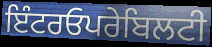
ਇੰਟਰਓਪਰੇਬਿਲਟੀ